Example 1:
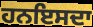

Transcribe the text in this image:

ਹਨਇਸਦਾ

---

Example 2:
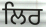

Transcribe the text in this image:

ਲਿਰ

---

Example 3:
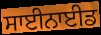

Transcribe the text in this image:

ਸਾਈਨਾਈਡ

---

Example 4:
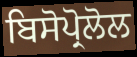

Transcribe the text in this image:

ਬਿਸੋਪ੍ਰੋਲੋਲ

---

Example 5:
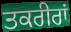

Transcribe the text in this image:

ਤਕਰੀਰਾਂ